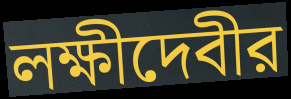
লক্ষীদেবীর